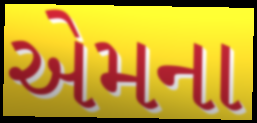
એમના